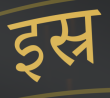
इस्र